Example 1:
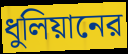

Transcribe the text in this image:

ধুলিয়ানের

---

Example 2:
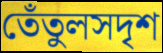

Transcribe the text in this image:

তেঁতুলসদৃশ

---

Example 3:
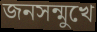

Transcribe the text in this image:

জনসন্মুখে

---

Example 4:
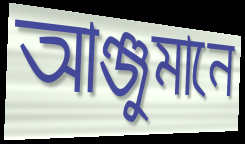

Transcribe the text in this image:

আঞ্জুমানে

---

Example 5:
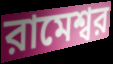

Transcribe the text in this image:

রামেশ্বর